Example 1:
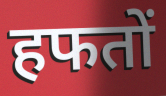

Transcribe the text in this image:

हफतों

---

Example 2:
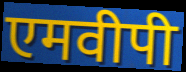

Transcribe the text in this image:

एमवीपी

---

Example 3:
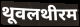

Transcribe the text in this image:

थूवलथीरम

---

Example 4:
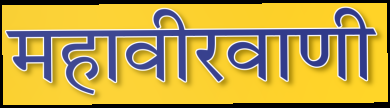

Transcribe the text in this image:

महावीरवाणी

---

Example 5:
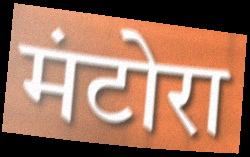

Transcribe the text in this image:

मंटोरा